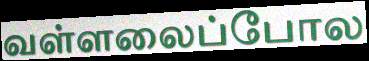
வள்ளலைப்போல